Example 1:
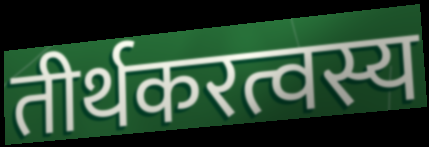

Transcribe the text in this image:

तीर्थकरत्वस्य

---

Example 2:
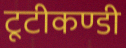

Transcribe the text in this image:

टूटीकण्डी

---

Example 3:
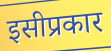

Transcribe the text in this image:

इसीप्रकार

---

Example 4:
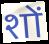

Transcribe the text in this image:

शों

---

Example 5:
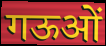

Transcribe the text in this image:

गऊओं